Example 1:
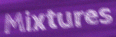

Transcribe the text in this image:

Mixtures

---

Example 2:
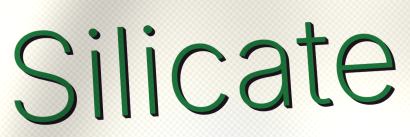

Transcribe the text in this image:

Silicate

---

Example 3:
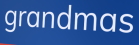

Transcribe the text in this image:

grandmas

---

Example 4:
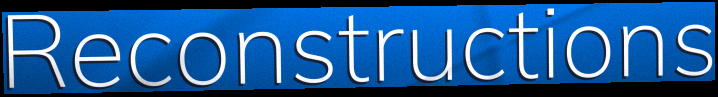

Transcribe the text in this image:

Reconstructions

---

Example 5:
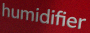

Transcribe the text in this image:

humidifier